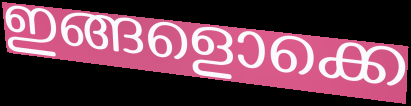
ഇങ്ങളൊക്കെ